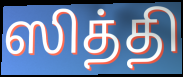
ஸித்தி